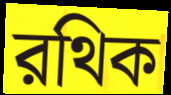
রথিক